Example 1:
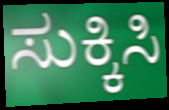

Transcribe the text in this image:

ಸುಕ್ಕಿಸಿ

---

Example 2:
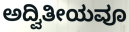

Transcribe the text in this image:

ಅದ್ವಿತೀಯವೂ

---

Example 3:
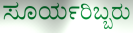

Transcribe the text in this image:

ಸೂರ್ಯರಿಬ್ಬರು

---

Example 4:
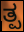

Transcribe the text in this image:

ತ್ಪ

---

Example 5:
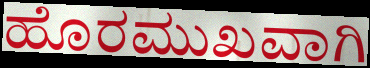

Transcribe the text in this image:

ಹೊರಮುಖವಾಗಿ